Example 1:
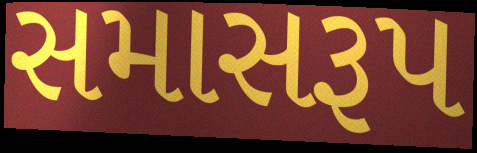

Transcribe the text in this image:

સમાસરૂપ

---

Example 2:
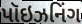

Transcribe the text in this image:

પૉઇઝનિંગ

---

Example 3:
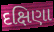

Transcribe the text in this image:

દક્ષિણા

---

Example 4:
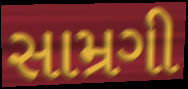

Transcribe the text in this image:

સામ્રગી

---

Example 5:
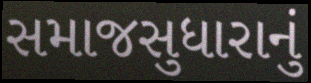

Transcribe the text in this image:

સમાજસુધારાનું